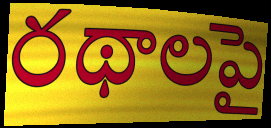
రథాలపై